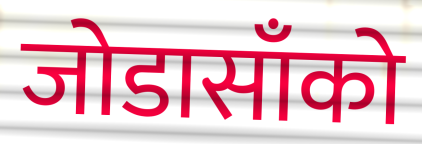
जोडासाँको